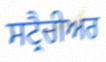
ਸਟ੍ਰੈਚੀਅਰ